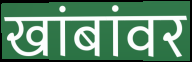
खांबांवर